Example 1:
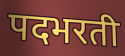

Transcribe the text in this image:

पदभरती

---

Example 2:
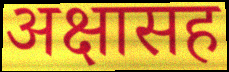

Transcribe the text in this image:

अक्षासह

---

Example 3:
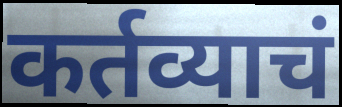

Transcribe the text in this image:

कर्तव्याचं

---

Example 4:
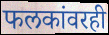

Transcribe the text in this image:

फलकांवरही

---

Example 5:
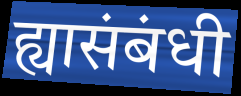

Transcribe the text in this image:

ह्यासंबंधी